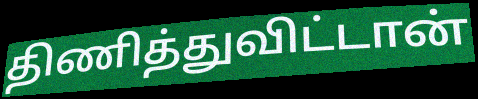
திணித்துவிட்டான்